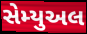
સેમ્યુઅલ